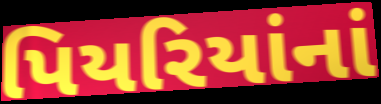
પિયરિયાંનાં